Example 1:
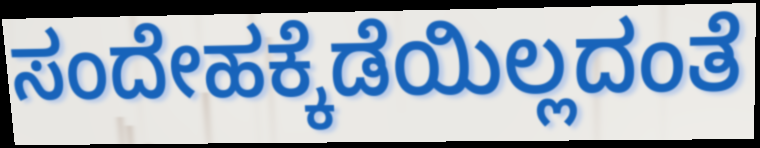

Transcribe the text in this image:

ಸಂದೇಹಕ್ಕೆಡೆಯಿಲ್ಲದಂತೆ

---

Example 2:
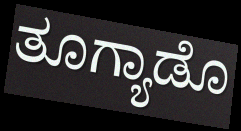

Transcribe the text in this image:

ತೂಗ್ಯಾಡೊ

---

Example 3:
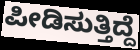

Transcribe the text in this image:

ಪೀಡಿಸುತ್ತಿದ್ದೆ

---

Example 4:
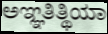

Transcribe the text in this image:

ಅಞ್ಞತಿತ್ಥಿಯಾ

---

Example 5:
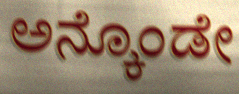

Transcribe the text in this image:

ಅನ್ಕೊಂಡೇ